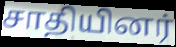
சாதியினர்